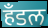
हॅंडल